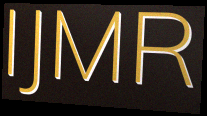
IJMR